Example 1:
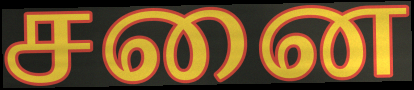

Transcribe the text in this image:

சனை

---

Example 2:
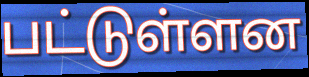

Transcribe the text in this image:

பட்டுள்ளன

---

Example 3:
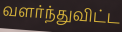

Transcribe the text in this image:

வளர்ந்துவிட்ட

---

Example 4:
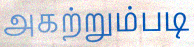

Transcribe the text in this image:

அகற்றும்படி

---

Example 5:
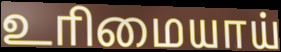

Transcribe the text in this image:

உரிமையாய்